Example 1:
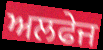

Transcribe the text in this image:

ਅਲਫੇਜ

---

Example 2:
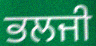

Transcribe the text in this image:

ਭਲਜੀ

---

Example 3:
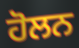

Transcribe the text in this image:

ਹੋਲਨ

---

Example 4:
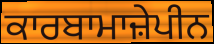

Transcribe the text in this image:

ਕਾਰਬਾਮਾਜ਼ੇਪੀਨ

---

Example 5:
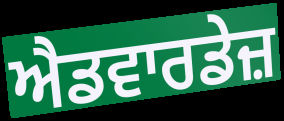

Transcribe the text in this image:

ਐਡਵਾਰਡੇਜ਼